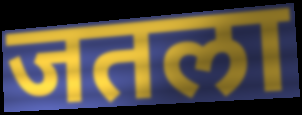
जतला